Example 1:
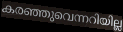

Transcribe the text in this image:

കരഞ്ഞുവെന്നറിയില്ല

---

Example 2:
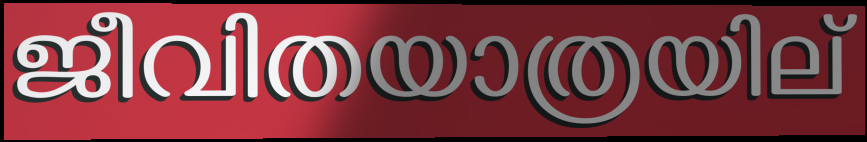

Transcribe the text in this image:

ജീവിതയാത്രയില്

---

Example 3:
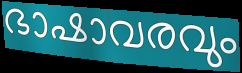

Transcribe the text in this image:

ഭാഷാവരവും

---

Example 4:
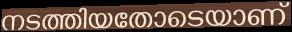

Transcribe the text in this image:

നടത്തിയതോടെയാണ്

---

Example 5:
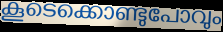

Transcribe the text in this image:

കൂടെക്കൊണ്ടുപോവും